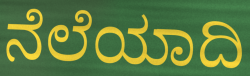
ನೆಲೆಯಾದಿ